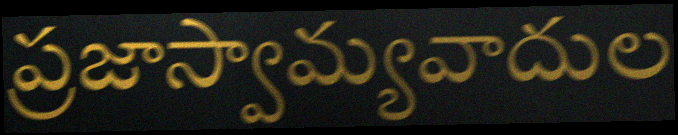
ప్రజాస్వామ్యవాదుల